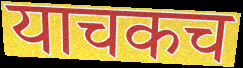
याचकच